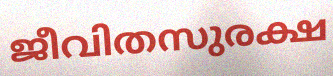
ജീവിതസുരക്ഷ